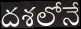
దశలోనే